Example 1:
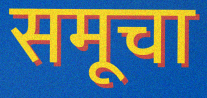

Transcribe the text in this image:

समूचा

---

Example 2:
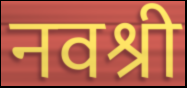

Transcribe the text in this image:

नवश्री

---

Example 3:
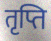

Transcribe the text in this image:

तृप्ति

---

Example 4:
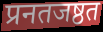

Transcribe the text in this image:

प्रनतजष्ठत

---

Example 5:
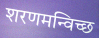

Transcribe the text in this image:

शरणमन्विच्छ